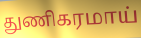
துணிகரமாய்